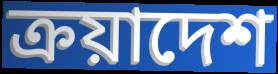
ক্রয়াদেশ